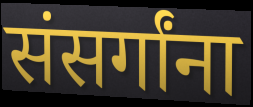
संसर्गांना